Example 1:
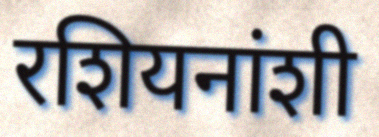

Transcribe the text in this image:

रशियनांशी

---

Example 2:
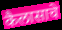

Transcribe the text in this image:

कैलासाचे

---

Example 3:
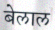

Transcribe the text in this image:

बेलाल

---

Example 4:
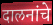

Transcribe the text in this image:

दालनांचे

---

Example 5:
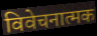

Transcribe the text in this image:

विवेचनात्मक